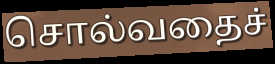
சொல்வதைச்